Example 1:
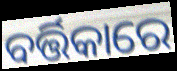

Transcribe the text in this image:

ବର୍ତ୍ତିକାରେ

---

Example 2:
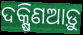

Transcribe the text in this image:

ଦକ୍ଷିଣଆଡ଼ୁ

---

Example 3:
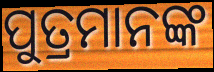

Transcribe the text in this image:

ପୁତ୍ରମାନଙ୍କ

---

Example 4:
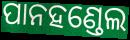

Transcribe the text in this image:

ପାନହଣ୍ଡେଲ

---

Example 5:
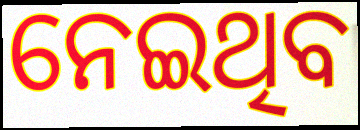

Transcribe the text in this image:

ନେଇଥିବ